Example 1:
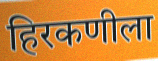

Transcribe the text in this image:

हिरकणीला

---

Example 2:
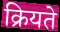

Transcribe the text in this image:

क्रियते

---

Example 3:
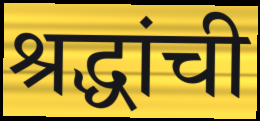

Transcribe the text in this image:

श्रद्धांची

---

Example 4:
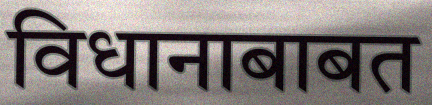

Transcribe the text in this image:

विधानाबाबत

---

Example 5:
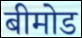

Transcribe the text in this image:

बीमोड